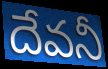
దేవనీ